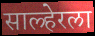
साल्हेरला